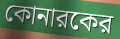
কোনারকের